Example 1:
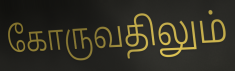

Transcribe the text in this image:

கோருவதிலும்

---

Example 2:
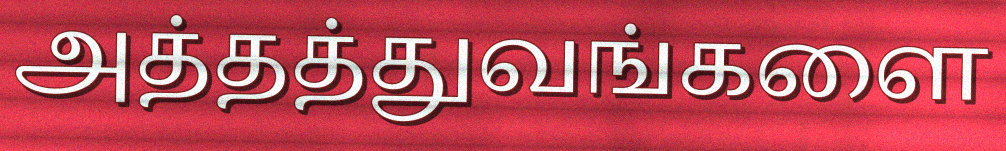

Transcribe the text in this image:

அத்தத்துவங்களை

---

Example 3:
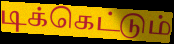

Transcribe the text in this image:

டிக்கெட்டும்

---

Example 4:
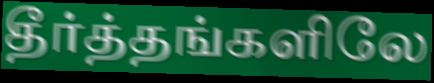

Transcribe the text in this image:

தீர்த்தங்களிலே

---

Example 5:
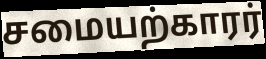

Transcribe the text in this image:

சமையற்காரர்